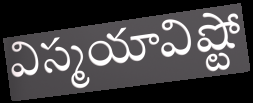
విస్మయావిష్టో